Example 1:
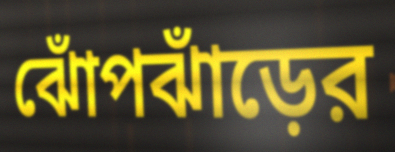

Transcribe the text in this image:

ঝোঁপঝাঁড়ের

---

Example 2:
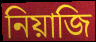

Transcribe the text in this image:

নিয়াজি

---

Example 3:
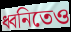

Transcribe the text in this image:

ধ্বনিতেও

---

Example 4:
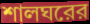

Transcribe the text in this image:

শালঘরের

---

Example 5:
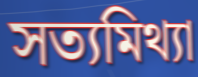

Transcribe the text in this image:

সত্যমিথ্যা